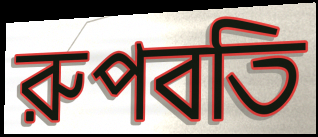
রুপবতি